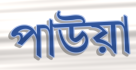
পাউয়া